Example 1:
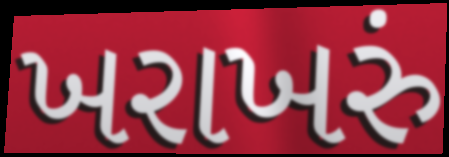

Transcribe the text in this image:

ખરાખરું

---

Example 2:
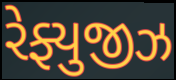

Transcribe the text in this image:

રેફ્યુજીઝ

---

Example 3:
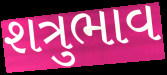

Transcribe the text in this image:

શત્રુભાવ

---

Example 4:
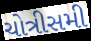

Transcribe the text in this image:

ચોત્રીસમી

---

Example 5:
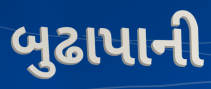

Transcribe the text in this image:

બુઢાપાની